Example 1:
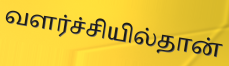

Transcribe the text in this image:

வளர்ச்சியில்தான்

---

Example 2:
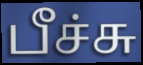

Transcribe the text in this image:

பீச்சு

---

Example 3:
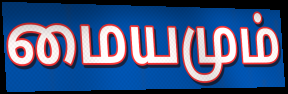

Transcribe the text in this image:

மையமும்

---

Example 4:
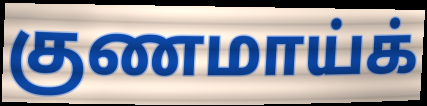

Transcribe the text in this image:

குணமாய்க்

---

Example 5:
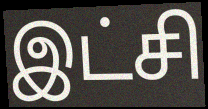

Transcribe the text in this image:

இட்சி